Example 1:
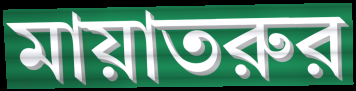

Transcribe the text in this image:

মায়াতরুর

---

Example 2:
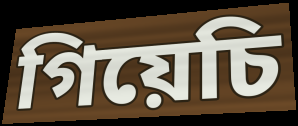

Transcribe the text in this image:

গিয়েচি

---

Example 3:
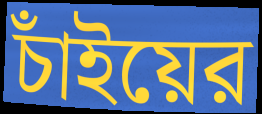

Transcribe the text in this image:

চাঁইয়ের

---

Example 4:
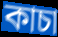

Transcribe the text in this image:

কাচা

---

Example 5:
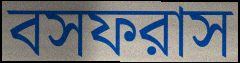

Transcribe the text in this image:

বসফরাস